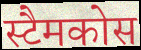
स्टैमकोस